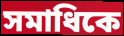
সমাধিকে